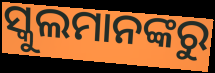
ସ୍କୁଲମାନଙ୍କରୁ